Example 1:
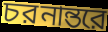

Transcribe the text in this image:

চরনান্তরে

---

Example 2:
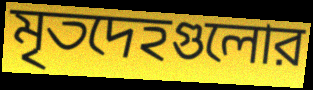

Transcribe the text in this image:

মৃতদেহগুলোর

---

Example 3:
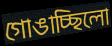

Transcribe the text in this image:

গোঙাচ্ছিলো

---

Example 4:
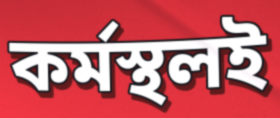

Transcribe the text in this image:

কর্মস্থলই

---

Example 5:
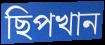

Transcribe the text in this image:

ছিপখান